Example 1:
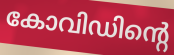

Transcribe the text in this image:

കോവിഡിന്റെ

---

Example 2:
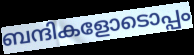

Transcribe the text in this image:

ബന്ദികളോടൊപ്പം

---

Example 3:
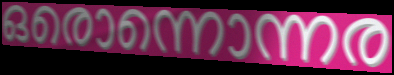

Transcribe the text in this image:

ഒരൊന്നൊന്നര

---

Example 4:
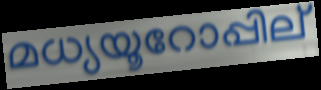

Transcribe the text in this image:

മധ്യയൂറോപ്പില്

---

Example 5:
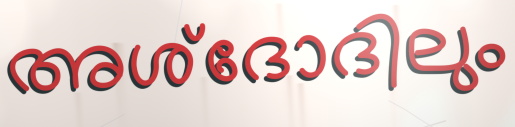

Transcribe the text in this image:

അശ്ദോദിലും